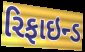
રિફાઇન્ડ